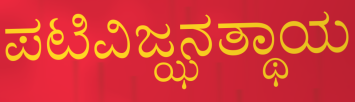
ಪಟಿವಿಜ್ಝನತ್ಥಾಯ